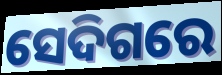
ସେଦିଗରେ